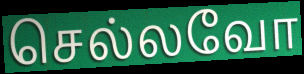
செல்லவோ